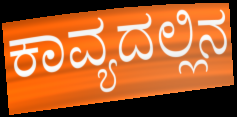
ಕಾವ್ಯದಲ್ಲಿನ